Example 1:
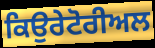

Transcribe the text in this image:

ਕਿਉਰੇਟੋਰੀਅਲ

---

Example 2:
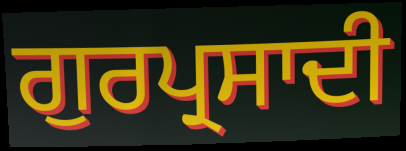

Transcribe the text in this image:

ਗੁਰਪ੍ਰਸਾਦੀ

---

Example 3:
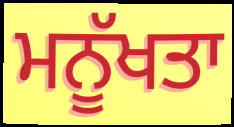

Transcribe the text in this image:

ਮਨੂੱਖਤਾ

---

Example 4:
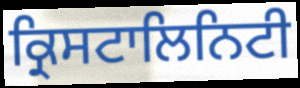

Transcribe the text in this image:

ਕ੍ਰਿਸਟਾਲਿਨਿਟੀ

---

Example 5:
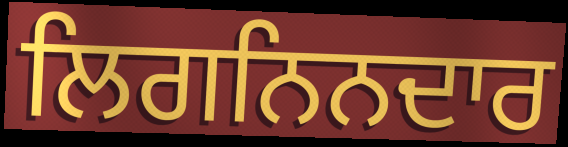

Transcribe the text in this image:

ਲਿਗਨਿਨਦਾਰ